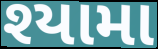
શ્યામા